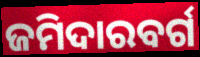
ଜମିଦାରବର୍ଗ